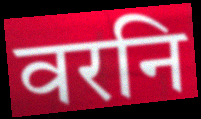
वरनि